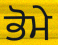
ਭੋਮੇ